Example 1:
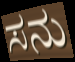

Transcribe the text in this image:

ಸನು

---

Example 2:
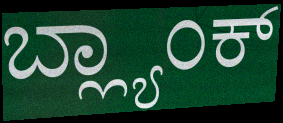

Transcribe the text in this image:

ಬ್ಲ್ಯಾಂಕ್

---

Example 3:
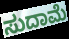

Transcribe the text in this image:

ಸುದಾಮೆ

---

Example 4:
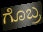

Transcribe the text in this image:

ಗೊಬ್ರ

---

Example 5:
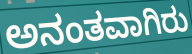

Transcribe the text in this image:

ಅನಂತವಾಗಿರು